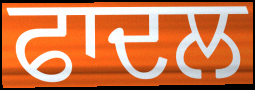
ਫਾਦਲ